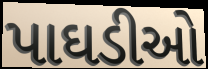
પાઘડીઓ